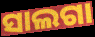
ସାଲଗା